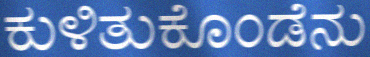
ಕುಳಿತುಕೊಂಡೆನು